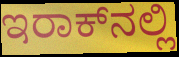
ಇರಾಕ್‌ನಲ್ಲಿ